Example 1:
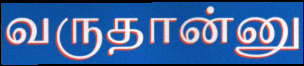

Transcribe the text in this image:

வருதான்னு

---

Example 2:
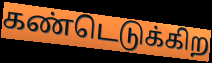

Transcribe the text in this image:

கண்டெடுக்கிற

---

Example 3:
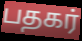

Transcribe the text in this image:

பதகர்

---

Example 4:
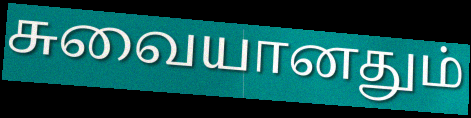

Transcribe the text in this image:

சுவையானதும்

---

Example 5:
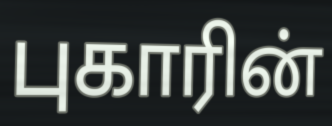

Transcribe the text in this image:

புகாரின்